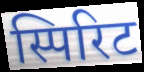
स्पिरिट